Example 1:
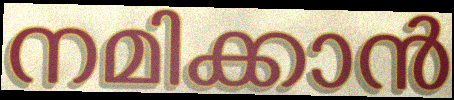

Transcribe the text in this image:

നമിക്കാൻ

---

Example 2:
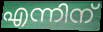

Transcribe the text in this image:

എന്നിന്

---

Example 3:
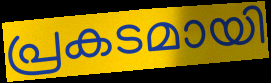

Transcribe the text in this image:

പ്രകടമായി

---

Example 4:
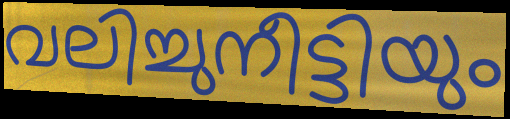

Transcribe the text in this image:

വലിച്ചുനീട്ടിയും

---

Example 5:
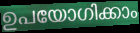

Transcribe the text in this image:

ഉപയോഗിക്കാം